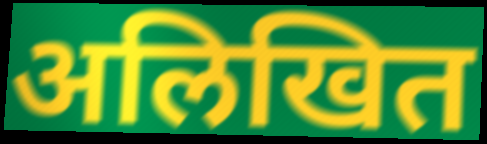
अलिखित